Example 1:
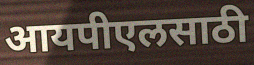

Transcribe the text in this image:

आयपीएलसाठी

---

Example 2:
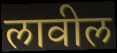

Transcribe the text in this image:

लावील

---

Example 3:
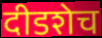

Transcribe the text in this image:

दीडशेच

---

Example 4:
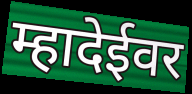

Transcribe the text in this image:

म्हादेईवर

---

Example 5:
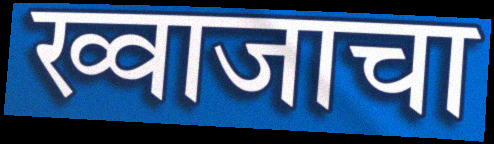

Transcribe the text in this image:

ख्वाजाचा